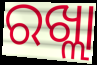
ରଖ୍ଲା